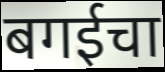
बगईचा